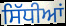
ਸਿੱਧੀਆਂ